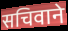
सचिवाने